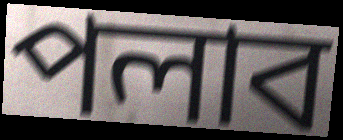
পলাব